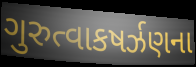
ગુરુત્વાકષર્ઝણના